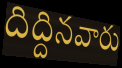
దిద్దినవారు